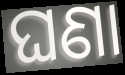
ଘଣା